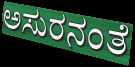
ಅಸುರನಂತೆ